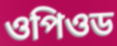
ওপিওড